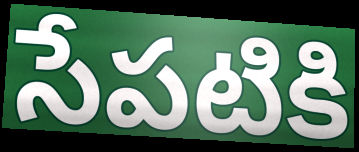
సేపటికి